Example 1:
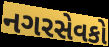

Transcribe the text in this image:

નગરસેવકો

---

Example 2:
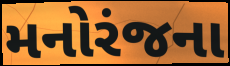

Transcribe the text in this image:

મનોરંજના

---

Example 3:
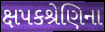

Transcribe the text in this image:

ક્ષપકશ્રેણિના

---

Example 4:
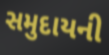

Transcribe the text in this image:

સમુદાયની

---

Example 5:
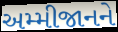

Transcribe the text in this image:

અમ્મીજાનને